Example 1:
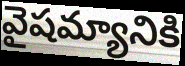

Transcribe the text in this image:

వైషమ్యానికి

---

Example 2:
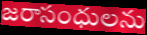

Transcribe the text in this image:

జరాసంధులను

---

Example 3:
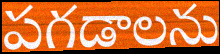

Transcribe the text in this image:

పగడాలను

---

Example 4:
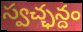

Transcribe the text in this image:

స్వచ్ఛన్దం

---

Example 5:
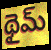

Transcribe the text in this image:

థైమ్